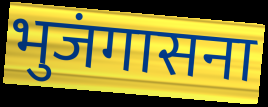
भुजंगासना